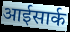
आईसार्क